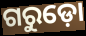
ଗରୁଡ଼ୋ